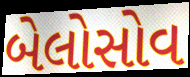
બેલોસોવ